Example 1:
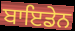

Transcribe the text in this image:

ਬਾਇਡੇਨ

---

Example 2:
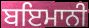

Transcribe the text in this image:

ਬਇਮਾਨੀ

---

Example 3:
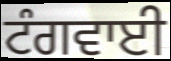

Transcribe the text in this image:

ਟੰਗਵਾਈ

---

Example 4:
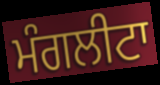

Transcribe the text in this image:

ਮੰਗਲੀਟਾ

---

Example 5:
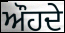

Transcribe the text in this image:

ਔਹਦੇ